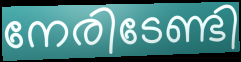
നേരിടേണ്ടി